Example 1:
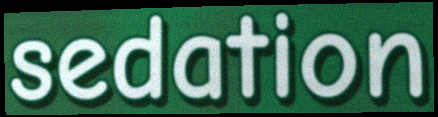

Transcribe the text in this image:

sedation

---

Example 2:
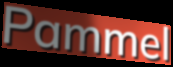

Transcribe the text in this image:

Pammel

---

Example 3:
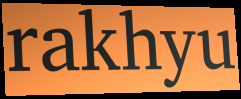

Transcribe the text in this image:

rakhyu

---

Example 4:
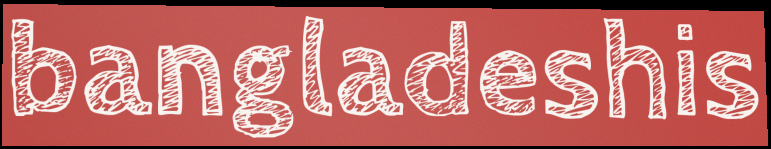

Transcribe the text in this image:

bangladeshis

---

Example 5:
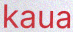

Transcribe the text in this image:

kaua